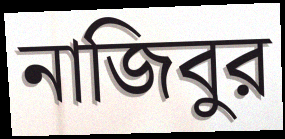
নাজিবুর